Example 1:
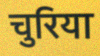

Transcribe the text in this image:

चुरिया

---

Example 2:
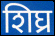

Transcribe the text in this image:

शिघ्र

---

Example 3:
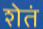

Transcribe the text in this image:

शेतं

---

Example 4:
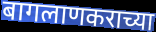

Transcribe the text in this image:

बागलाणकराच्या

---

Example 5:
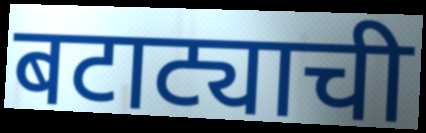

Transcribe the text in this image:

बटाट्याची